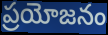
ప్రయోజనం